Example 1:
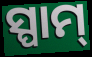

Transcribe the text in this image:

ସ୍ପାମ୍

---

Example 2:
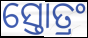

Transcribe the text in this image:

ସ୍ତୋତ୍ରଂ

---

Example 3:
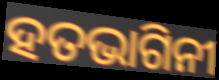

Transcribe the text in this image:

ହତଭାଗିନୀ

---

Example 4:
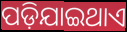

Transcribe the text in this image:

ପଡ଼ିଯାଇଥାଏ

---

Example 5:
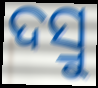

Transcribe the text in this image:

ଦସ୍ରୁ